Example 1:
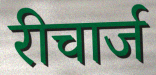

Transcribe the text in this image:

रीचार्ज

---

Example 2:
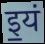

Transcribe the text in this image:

इ॒यं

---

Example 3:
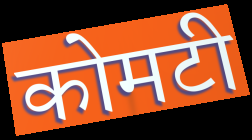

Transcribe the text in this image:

कोमटी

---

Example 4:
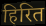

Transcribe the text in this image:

हिरित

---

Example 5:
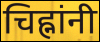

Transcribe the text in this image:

चिह्नांनी